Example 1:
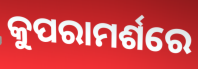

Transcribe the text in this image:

କୁପରାମର୍ଶରେ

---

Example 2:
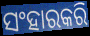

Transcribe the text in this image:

ସଂହାରକରି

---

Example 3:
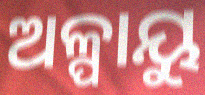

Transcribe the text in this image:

ଅଳ୍ପାୟୁ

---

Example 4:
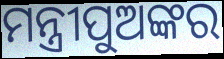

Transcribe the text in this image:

ମନ୍ତ୍ରୀପୁଅଙ୍କର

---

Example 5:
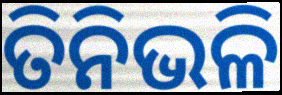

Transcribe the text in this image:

ତିନିଭଳି